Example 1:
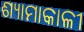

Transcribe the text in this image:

ଶ୍ୟାମାକାଳୀ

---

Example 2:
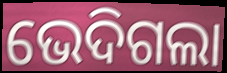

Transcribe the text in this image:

ଭେଦିଗଲା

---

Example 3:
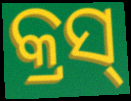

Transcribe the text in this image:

କ୍ରସ୍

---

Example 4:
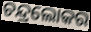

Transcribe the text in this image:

ଚନ୍ଦ୍ରଲୋକର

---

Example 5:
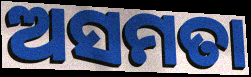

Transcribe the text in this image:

ଅସମତା